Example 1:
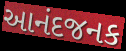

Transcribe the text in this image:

આનંદજનક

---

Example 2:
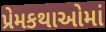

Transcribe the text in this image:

પ્રેમકથાઓમાં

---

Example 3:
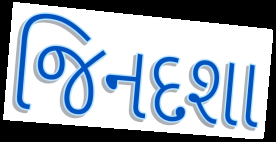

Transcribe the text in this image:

જિનદશા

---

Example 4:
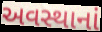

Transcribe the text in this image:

અવસ્થાનાં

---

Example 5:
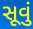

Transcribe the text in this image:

સૂવું